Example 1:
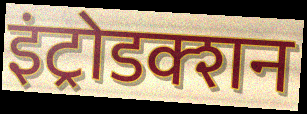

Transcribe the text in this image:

इंट्रोडक्शन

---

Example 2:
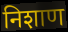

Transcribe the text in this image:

निशाण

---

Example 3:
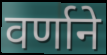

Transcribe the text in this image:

वर्णाने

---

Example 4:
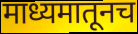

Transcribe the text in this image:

माध्यमातूनच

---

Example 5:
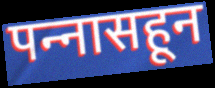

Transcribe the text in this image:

पन्नासहून